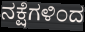
ನಕ್ಷೆಗಳಿಂದ